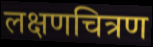
लक्षणचित्रण